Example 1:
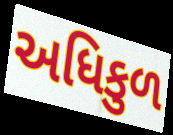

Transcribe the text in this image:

અધિકુળ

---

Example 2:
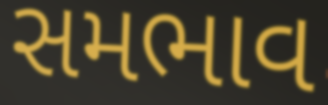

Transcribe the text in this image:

સમભાવ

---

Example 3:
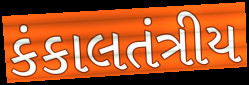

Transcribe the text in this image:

કંકાલતંત્રીય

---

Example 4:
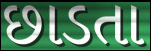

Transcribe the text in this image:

છાડતા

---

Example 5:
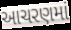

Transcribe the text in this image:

આચરણમાં